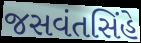
જસવંતસિંહે